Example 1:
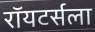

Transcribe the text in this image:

रॉयटर्सला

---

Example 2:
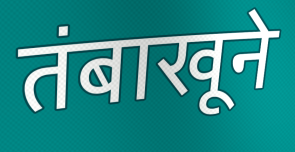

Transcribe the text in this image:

तंबाखूने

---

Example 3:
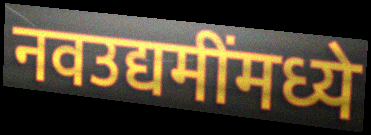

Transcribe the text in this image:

नवउद्यमींमध्ये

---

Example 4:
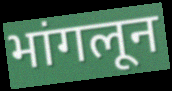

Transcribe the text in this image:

भांगलून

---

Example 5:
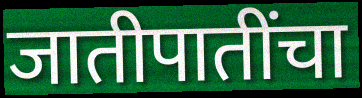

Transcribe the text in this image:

जातीपातींचा